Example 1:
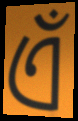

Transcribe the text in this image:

ଏଁ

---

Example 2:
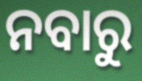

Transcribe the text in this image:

ନବାରୁ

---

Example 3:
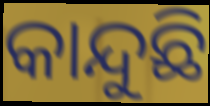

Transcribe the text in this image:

କାନ୍ଦୁଛି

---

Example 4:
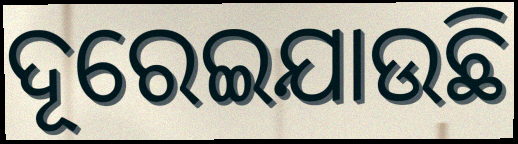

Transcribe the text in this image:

ଦୂରେଇଯାଉଛି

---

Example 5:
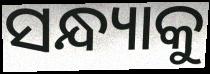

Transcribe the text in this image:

ସନ୍ଧ୍ୟାକୁ